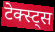
टेक्स्ट्स